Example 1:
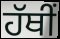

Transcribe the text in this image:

ਹੱਥੀਂ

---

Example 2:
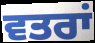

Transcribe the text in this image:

ਵਤਰਾਂ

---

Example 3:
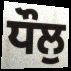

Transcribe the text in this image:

ਧੌਲੁ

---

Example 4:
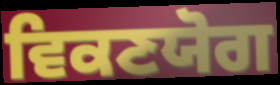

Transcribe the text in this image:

ਵਿਕਣਯੋਗ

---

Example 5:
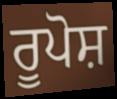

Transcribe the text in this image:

ਰੂਪੋਸ਼